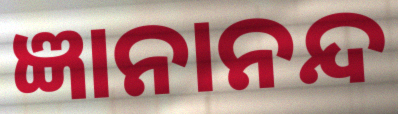
ଜ୍ଞାନାନନ୍ଦ